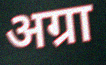
अग्रा